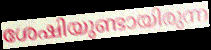
ശേഷിയുണ്ടായിരുന്ന